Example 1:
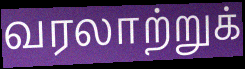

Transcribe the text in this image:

வரலாற்றுக்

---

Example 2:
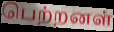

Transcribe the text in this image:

பெற்றனள்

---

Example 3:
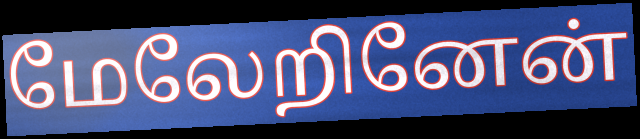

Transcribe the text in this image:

மேலேறினேன்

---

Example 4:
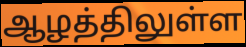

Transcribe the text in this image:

ஆழத்திலுள்ள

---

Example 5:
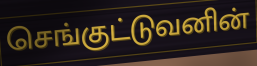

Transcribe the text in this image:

செங்குட்டுவனின்